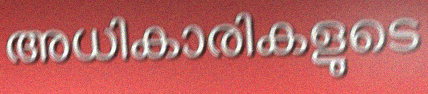
അധികാരികളുടെ